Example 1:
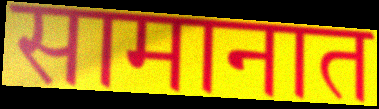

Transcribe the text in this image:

सामानात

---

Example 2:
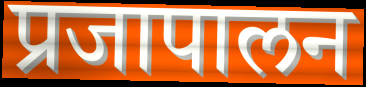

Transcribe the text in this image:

प्रजापालन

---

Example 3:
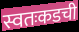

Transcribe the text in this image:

स्वतःकडची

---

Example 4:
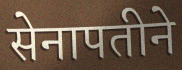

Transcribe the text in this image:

सेनापतीने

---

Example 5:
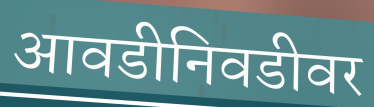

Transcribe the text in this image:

आवडीनिवडीवर